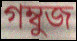
গম্বুজ